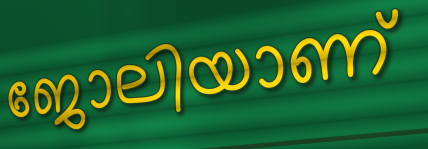
ജോലിയാണ്